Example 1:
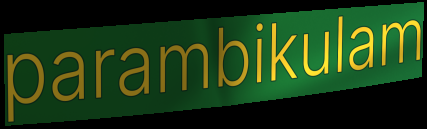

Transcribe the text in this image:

parambikulam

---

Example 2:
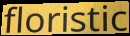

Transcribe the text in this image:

floristic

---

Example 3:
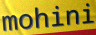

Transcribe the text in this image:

mohini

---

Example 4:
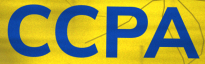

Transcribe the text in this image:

CCPA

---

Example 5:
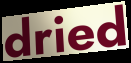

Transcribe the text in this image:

dried